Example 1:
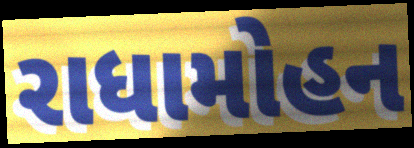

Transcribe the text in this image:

રાધામોહન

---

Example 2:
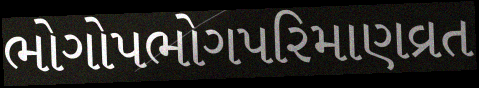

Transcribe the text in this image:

ભોગોપભોગપરિમાણવ્રત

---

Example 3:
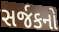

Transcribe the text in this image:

સર્જકનો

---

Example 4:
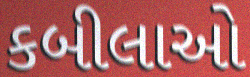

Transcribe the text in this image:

કબીલાઓ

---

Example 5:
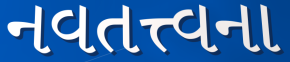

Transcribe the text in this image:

નવતત્ત્વના